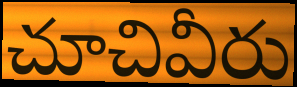
చూచివీరు